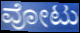
ವೋಟು